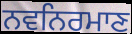
ਨਵਨਿਰਮਾਣ